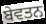
ਬੇਵਤਨ